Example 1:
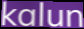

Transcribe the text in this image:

kalun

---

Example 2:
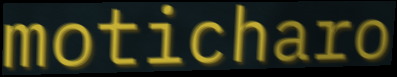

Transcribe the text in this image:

moticharo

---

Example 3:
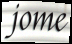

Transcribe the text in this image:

jome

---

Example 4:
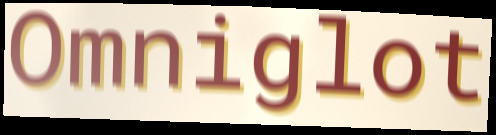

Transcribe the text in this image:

Omniglot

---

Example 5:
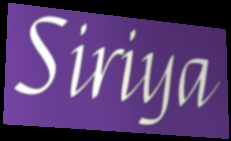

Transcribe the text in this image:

Siriya